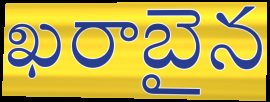
ఖరాబైన